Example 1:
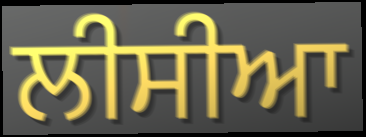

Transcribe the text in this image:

ਲੀਸੀਆ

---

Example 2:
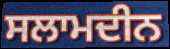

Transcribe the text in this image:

ਸਲਾਮਦੀਨ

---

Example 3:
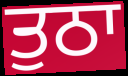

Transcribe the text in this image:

ਤੁਠਾ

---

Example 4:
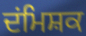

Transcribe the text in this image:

ਦਂਮਿਸ਼ਕ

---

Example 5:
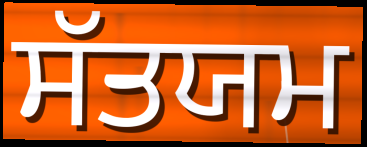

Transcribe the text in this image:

ਸੱਤਯਮ